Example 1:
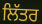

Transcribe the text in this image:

ਲਿੱਤਰ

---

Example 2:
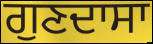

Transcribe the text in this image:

ਗੁਣਦਾਸਾ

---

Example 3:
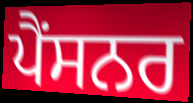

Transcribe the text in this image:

ਪੈਂਸਨਰ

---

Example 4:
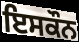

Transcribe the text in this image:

ਇਸਕੌਨ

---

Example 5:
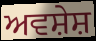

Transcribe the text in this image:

ਅਵਸ਼ੇਸ਼